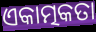
ଏକାତ୍ମକତା